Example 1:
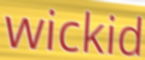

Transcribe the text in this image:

wickid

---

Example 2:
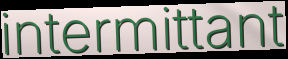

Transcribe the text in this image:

intermittant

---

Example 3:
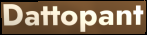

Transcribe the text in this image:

Dattopant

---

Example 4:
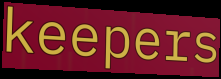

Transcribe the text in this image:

keepers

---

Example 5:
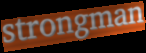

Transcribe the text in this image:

strongman